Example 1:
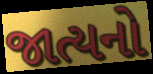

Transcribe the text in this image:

જાત્યનો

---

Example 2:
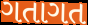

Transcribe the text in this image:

ગતાગત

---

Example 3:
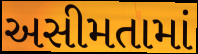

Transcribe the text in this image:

અસીમતામાં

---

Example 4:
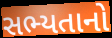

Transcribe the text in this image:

સભ્યતાનો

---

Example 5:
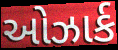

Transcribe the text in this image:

ઓઝાર્ક